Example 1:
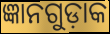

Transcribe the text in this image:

ଜ୍ଞାନଗୁଡ଼ାକ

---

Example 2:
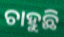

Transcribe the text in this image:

ଚାହୁଛି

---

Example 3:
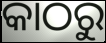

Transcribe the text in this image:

କାଠରୁ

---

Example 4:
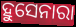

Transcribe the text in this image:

ହୁସେନାରା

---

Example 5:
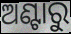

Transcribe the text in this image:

ଅଣ୍ଟାରୁ